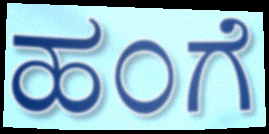
ಹಂಗೆ